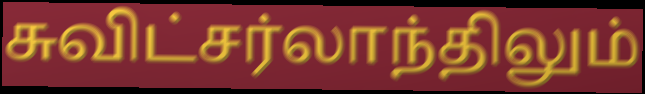
சுவிட்சர்லாந்திலும்